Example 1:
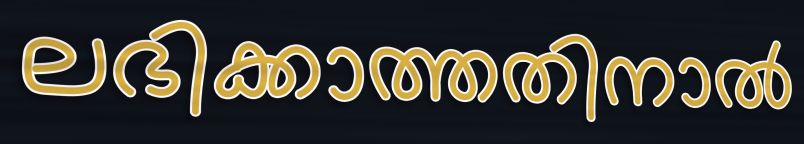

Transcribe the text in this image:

ലഭിക്കാത്തതിനാൽ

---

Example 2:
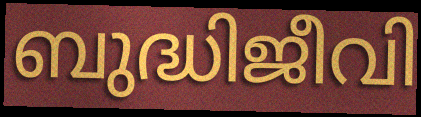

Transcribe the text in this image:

ബുദ്ധിജീവി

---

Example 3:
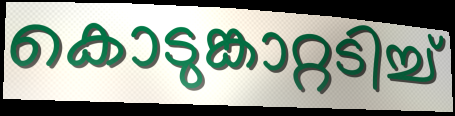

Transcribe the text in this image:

കൊടുങ്കാറ്റടിച്ച്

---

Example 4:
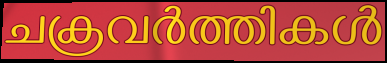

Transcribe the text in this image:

ചക്രവർത്തികൾ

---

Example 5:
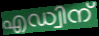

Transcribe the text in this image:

എഡ്വിന്